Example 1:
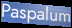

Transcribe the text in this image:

Paspalum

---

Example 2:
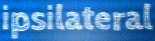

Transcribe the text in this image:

ipsilateral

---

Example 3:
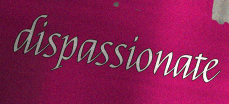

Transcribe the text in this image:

dispassionate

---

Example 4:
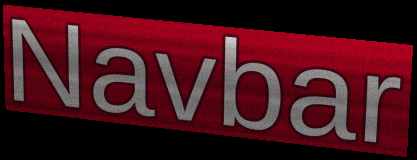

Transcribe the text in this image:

Navbar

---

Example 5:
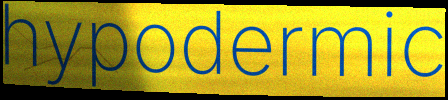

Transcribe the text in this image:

hypodermic